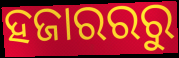
ହଜାରରରୁ